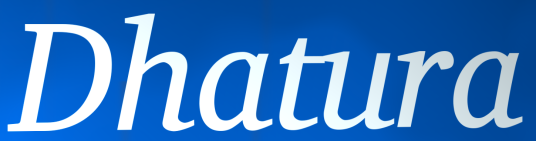
Dhatura